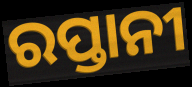
ରପ୍ତାନୀ